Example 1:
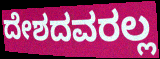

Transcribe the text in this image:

ದೇಶದವರಲ್ಲ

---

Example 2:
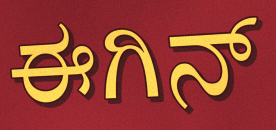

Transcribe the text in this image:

ಈಗಿನ್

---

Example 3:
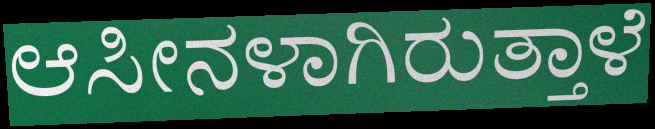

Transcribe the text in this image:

ಆಸೀನಳಾಗಿರುತ್ತಾಳೆ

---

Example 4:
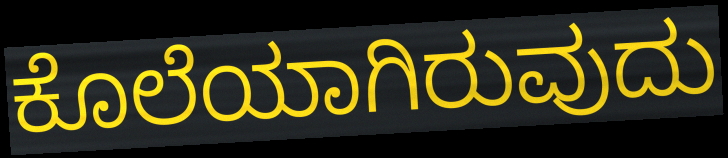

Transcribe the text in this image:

ಕೊಲೆಯಾಗಿರುವುದು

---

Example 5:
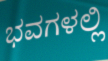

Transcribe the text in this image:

ಭವಗಳಲ್ಲಿ